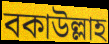
বকাউল্লাহ